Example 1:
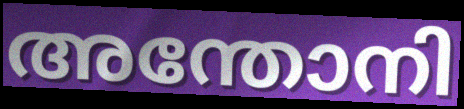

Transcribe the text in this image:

അന്തോനി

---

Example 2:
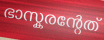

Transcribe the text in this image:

ഭാസ്കരന്റേത്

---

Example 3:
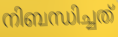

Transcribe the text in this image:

നിബന്ധിച്ചത്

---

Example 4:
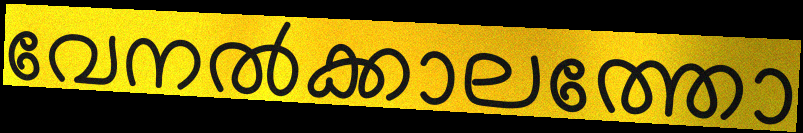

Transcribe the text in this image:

വേനൽക്കാലത്തോ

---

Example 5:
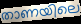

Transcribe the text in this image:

താണയിലെ